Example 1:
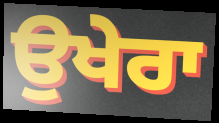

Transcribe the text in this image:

ਉਖੇਰਾ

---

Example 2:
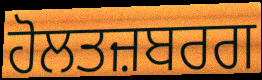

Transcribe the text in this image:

ਹੋਲਤਜ਼ਬਰਗ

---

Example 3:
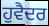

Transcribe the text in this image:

ਹੁਵੈਦਰ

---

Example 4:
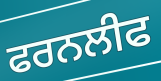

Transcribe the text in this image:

ਫਰਨਲੀਫ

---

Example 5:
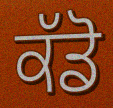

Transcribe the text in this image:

ਕੱਡੋ